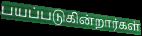
பயப்படுகின்றார்கள்